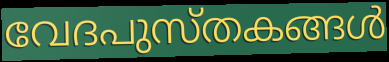
വേദപുസ്തകങ്ങൾ